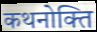
कथनोक्ति